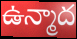
ఉన్మాద